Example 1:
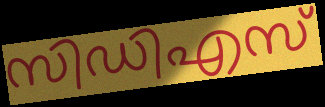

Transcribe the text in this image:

സിഡിഎസ്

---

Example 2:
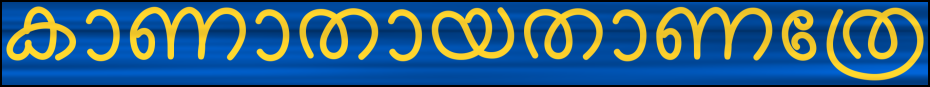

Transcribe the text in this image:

കാണാതായതാണത്രേ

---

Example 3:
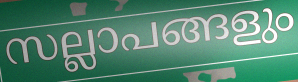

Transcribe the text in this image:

സല്ലാപങ്ങളും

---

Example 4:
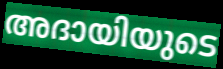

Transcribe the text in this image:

അദായിയുടെ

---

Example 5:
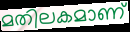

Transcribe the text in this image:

മതിലകമാണ്